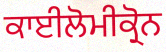
ਕਾਈਲੋਮੀਕ੍ਰੋਨ